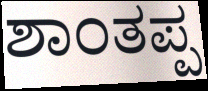
ಶಾಂತಪ್ಪ